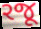
રજૂ